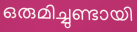
ഒരുമിച്ചുണ്ടായി